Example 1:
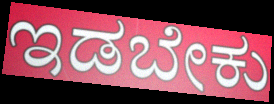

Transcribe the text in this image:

ಇಡಬೇಕು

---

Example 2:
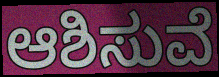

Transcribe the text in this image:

ಆಶಿಸುವೆ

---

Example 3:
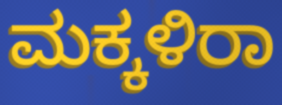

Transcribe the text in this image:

ಮಕ್ಕಳಿರಾ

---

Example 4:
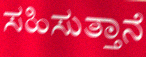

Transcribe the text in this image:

ಸಹಿಸುತ್ತಾನೆ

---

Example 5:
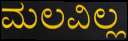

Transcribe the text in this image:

ಮಲವಿಲ್ಲ